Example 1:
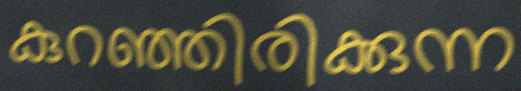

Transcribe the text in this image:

കുറഞ്ഞിരിക്കുന്ന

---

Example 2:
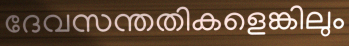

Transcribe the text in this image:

ദേവസന്തതികളെങ്കിലും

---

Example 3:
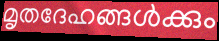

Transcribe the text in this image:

മൃതദേഹങ്ങൾക്കും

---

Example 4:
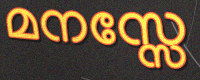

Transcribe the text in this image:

മനസ്സേ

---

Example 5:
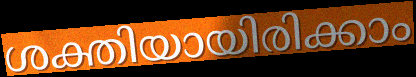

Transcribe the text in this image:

ശക്തിയായിരിക്കാം